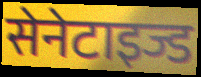
सेनेटाइज्ड